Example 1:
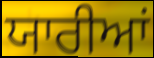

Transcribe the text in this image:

ਯਾਰੀਆਂ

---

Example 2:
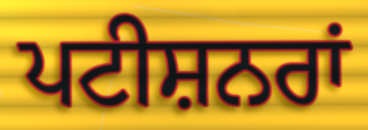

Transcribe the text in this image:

ਪਟੀਸ਼ਨਰਾਂ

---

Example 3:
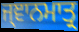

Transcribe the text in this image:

ਜ੍ਞਾਨਮਾਤ੍ਰ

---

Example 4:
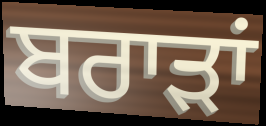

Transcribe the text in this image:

ਬਰਾੜਾਂ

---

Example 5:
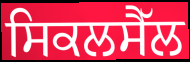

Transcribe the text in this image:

ਸਿਕਲਸੈੱਲ